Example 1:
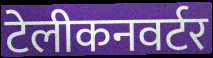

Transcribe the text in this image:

टेलीकनवर्टर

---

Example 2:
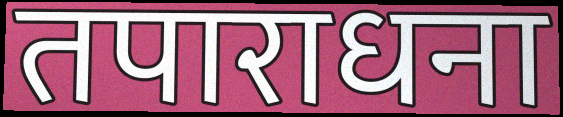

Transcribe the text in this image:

तपाराधना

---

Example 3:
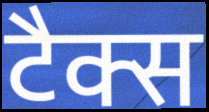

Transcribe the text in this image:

टैक्स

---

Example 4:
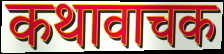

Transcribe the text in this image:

कथावाचक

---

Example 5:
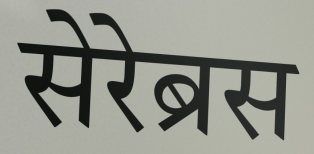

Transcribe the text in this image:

सेरेब्रस